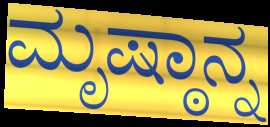
ಮೃಷ್ಠಾನ್ನ